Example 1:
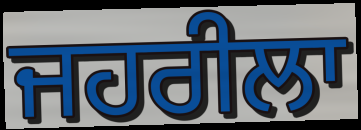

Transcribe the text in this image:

ਜਹਰੀਲਾ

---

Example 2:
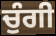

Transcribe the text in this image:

ਚੁੰਗੀ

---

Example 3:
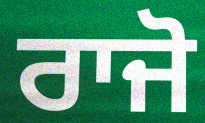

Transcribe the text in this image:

ਰਾਜੋ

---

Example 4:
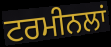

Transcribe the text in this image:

ਟਰਮੀਨਲਾਂ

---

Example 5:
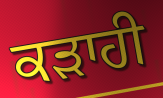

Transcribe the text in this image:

ਕੜਾਹੀ